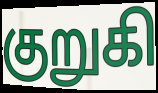
குறுகி